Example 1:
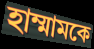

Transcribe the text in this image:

হাম্মামকে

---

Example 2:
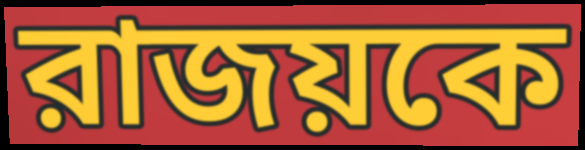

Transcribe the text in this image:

রাজয়কে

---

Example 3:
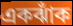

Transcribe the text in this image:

একঝাঁক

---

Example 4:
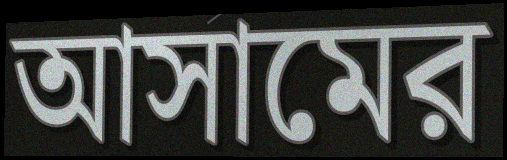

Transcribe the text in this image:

আসামের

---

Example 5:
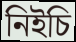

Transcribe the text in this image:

নিইচি